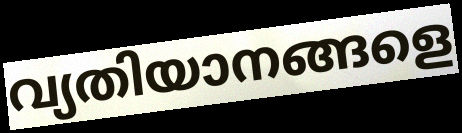
വ്യതിയാനങ്ങളെ